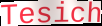
Tesich